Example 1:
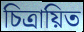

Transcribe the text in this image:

চিত্ৰায়িত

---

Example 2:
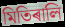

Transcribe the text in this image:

মিতিৰালি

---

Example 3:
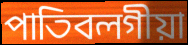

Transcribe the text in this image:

পাতিবলগীয়া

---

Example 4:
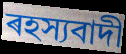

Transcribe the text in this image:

ৰহস্যবাদী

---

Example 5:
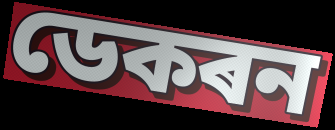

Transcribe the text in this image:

ডেকৰন